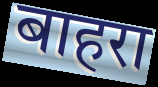
बाहरा